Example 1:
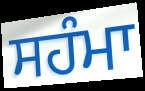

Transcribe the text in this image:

ਸਹੰਮਾ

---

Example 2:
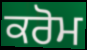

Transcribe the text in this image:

ਕਰੋਮ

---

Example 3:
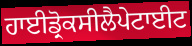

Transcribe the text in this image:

ਹਾਈਡ੍ਰੋਕਸੀਲੈਪੇਟਾਈਟ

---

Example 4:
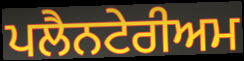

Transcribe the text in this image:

ਪਲੈਨਟੇਰੀਅਮ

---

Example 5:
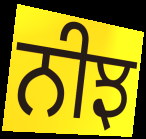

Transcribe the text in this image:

ਨੀਝ